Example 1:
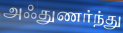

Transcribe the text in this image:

அஃதுணர்ந்து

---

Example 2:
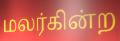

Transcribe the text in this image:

மலர்கின்ற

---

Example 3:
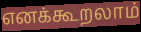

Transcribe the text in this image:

எனக்கூறலாம்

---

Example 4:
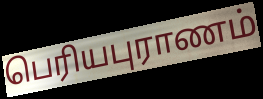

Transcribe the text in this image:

பெரியபுராணம்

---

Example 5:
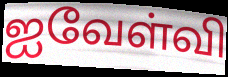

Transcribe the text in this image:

ஐவேள்வி